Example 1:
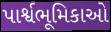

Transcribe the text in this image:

પાર્શ્વભૂમિકાઓ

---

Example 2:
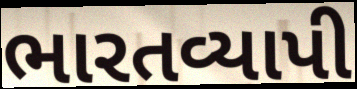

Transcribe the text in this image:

ભારતવ્યાપી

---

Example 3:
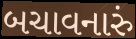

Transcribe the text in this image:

બચાવનારું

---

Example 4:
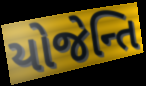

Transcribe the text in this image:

યોજેન્તિ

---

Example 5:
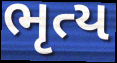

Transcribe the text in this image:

ભૃત્ય